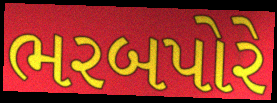
ભરબપોરે